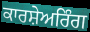
ਕਾਰਸ਼ੇਅਰਿੰਗ